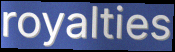
royalties